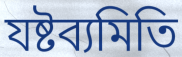
যষ্টব্যমিতি